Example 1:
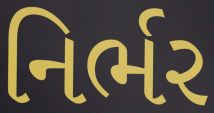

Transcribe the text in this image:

નિર્ભર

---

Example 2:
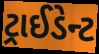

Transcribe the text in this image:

ટ્રાઈડેન્ટ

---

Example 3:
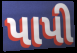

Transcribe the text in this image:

પાપી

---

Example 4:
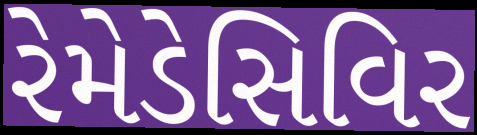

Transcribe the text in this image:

રેમેડેસિવિર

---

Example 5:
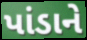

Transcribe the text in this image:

પાંડાને